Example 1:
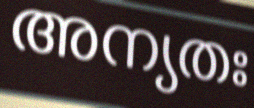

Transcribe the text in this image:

അന്യതഃ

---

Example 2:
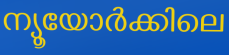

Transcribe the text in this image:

ന്യൂയോർക്കിലെ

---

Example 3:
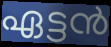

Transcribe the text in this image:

ഏട്ടൻ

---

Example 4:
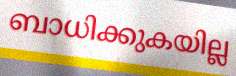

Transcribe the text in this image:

ബാധിക്കുകയില്ല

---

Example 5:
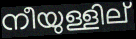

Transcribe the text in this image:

നീയുള്ളില്